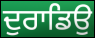
ਦੁਰਾਡਿਉ